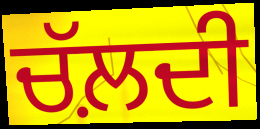
ਚੱਲ਼ਦੀ